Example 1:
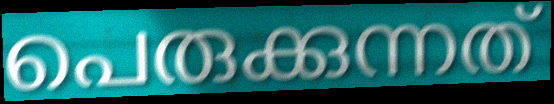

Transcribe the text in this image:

പെരുക്കുന്നത്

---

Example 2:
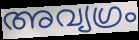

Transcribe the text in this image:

അവ്യഗ്രം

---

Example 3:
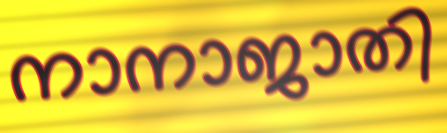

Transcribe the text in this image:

നാനാജാതി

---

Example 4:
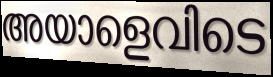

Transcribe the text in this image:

അയാളെവിടെ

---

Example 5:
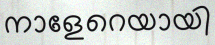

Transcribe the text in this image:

നാളേറെയായി